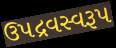
ઉપદ્રવસ્વરૂપ